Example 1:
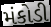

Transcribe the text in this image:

મંકોડી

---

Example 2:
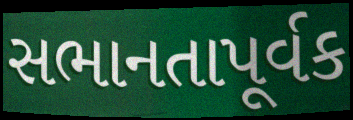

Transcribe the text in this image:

સભાનતાપૂર્વક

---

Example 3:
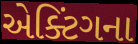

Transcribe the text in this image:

એક્ટિંગના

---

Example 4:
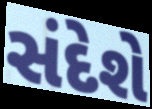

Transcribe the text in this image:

સંદેશે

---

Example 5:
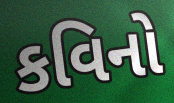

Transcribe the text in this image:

કવિનો